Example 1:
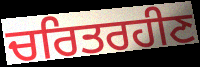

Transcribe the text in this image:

ਚਰਿਤਰਹੀਣ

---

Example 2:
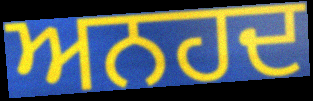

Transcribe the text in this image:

ਅਨਹਦ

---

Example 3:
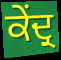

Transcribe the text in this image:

ਕੇਂਦ੍ਰ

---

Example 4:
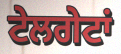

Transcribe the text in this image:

ਟੇਲਗੇਟਾਂ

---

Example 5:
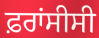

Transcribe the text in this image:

ਫ਼ਰਾਂਸੀਸੀ